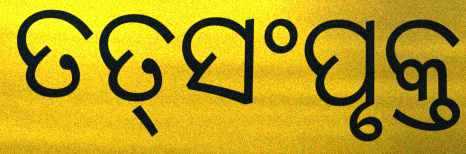
ତତ୍‌ସଂପୃକ୍ତ